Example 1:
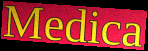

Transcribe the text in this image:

Medica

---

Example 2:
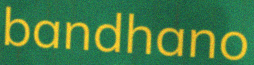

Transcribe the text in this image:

bandhano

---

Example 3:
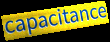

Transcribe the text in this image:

capacitance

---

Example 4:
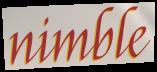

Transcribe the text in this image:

nimble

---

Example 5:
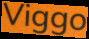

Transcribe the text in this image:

Viggo